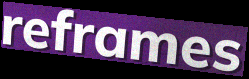
reframes